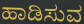
ಹಾಡಿಸುವ